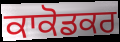
ਕਾਕੋਡਕਰ